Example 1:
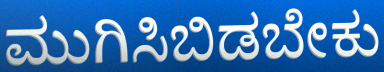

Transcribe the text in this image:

ಮುಗಿಸಿಬಿಡಬೇಕು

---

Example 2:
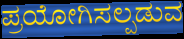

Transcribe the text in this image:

ಪ್ರಯೋಗಿಸಲ್ಪಡುವ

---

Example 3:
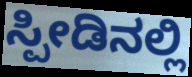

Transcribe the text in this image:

ಸ್ಪೀಡಿನಲ್ಲಿ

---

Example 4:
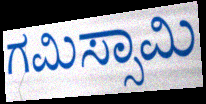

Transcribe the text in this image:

ಗಮಿಸ್ಸಾಮಿ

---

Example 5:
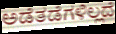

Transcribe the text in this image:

ಅಡೆತಡೆಗಳಿಲ್ಲದೆ